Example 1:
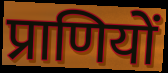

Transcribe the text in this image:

प्राणियों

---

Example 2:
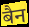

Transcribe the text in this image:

बैन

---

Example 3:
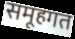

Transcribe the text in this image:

समूहगत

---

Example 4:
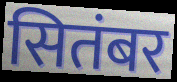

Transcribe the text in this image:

सितंबर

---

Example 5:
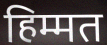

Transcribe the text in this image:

हिम्मत